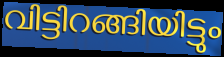
വിട്ടിറങ്ങിയിട്ടും